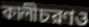
কালীচরণও